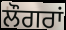
ਲੌਗਰਾਂ